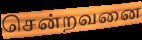
சென்றவனை